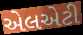
એલએટી